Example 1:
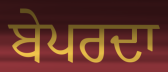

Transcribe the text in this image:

ਬੇਪਰਦਾ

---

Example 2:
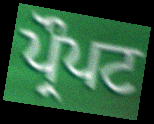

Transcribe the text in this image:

ਪ੍ਰੌਪਟ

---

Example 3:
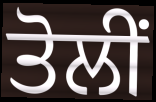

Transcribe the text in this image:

ਤੋਲੀਂ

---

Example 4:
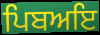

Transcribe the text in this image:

ਪਿਬਅਇ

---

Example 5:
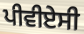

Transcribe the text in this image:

ਪੀਵੀਏਸੀ